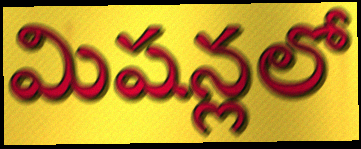
మిషన్లలో